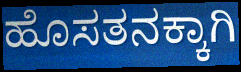
ಹೊಸತನಕ್ಕಾಗಿ